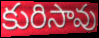
కురిసావు